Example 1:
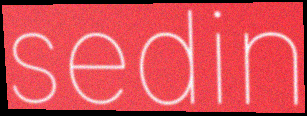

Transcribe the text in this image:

sedin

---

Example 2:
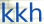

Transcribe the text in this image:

kkh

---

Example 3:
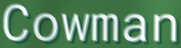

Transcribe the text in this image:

Cowman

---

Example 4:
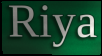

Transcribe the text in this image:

Riya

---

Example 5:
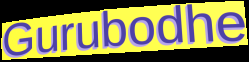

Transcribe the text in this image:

Gurubodhe